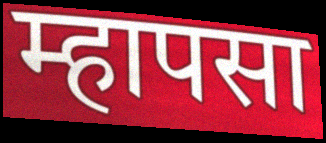
म्हापसा